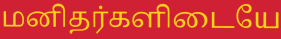
மனிதர்களிடையே